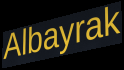
Albayrak